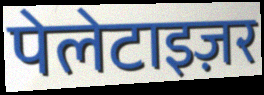
पेलेटाइज़र